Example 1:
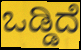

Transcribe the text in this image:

ಒಡ್ಡಿದೆ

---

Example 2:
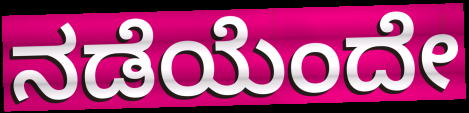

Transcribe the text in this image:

ನಡೆಯೆಂದೇ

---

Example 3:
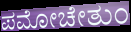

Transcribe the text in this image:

ಪಮೋಚೇತುಂ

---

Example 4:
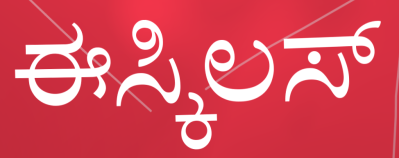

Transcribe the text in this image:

ಈಸ್ಕಿಲಸ್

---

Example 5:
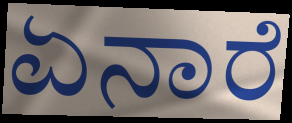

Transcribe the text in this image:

ಏನಾರೆ